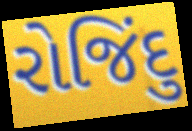
રોજિંદુ